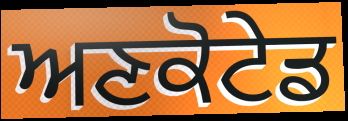
ਅਣਕੋਟੇਡ